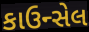
કાઉન્સેલ